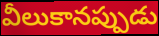
వీలుకానప్పుడు